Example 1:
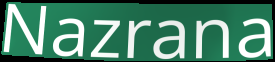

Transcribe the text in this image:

Nazrana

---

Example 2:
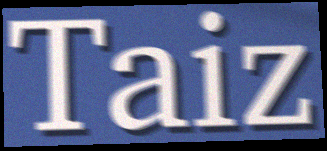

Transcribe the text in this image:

Taiz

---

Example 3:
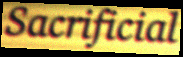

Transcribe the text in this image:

Sacrificial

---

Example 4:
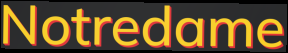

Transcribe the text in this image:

Notredame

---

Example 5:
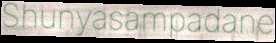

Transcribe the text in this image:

Shunyasampadane